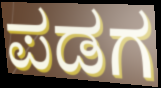
ಪಡಗ